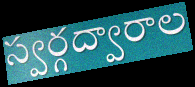
స్వర్గద్వారాల